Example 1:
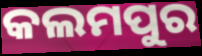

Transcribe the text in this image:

କଲମପୁର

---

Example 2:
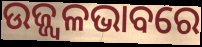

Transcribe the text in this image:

ଉଜ୍ଜ୍ୱଳଭାବରେ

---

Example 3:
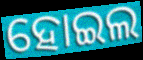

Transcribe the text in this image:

ହୋଇଲ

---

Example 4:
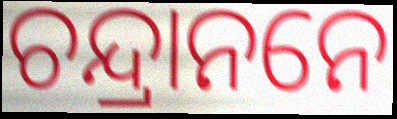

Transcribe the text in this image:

ଚନ୍ଦ୍ରାନନେ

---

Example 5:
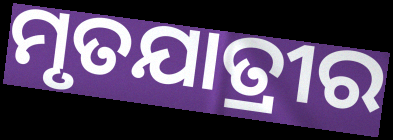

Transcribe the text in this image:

ମୃତଯାତ୍ରୀର